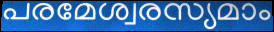
പരമേശ്വരസ്യമാം